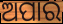
ଅପାର